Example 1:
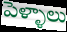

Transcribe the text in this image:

పెళ్ళాలు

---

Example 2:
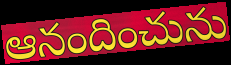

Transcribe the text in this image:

ఆనందించును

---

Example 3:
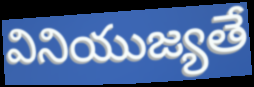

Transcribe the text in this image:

వినియుజ్యతే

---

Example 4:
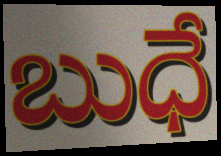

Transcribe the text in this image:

బుధే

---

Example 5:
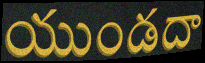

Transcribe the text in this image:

యుండదా